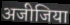
अजीजिया